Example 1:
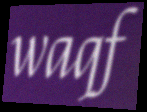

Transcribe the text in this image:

waqf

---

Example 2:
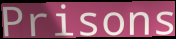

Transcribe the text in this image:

Prisons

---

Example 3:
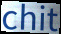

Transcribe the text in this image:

chit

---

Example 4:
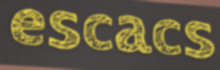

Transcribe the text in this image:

escacs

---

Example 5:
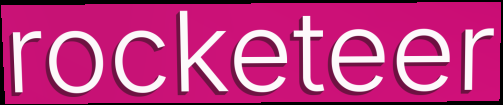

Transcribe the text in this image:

rocketeer